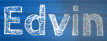
Edvin